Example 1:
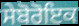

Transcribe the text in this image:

ਸੇਬੋਰੋਇਕ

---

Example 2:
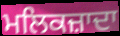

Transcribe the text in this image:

ਮਲਿਕਜ਼ਾਦਾ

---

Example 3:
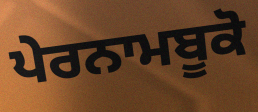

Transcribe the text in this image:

ਪੇਰਨਾਮਬੂਕੋ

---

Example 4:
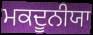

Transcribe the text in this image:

ਮਕਦੂਨੀਯਾ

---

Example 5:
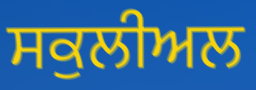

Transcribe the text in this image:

ਸਕੁਲੀਅਲ